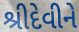
શ્રીદેવીને